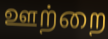
ஊற்றை